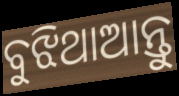
ବୁଝିଥାଆନ୍ତୁ